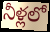
నీళ్లలో